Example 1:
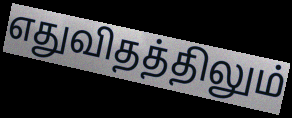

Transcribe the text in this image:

எதுவிதத்திலும்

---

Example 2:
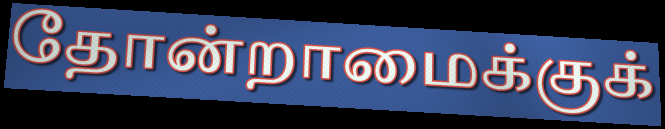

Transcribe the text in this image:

தோன்றாமைக்குக்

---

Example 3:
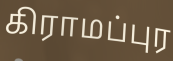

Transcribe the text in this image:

கிராமப்புர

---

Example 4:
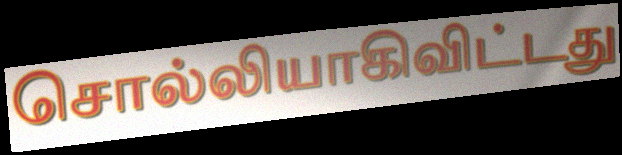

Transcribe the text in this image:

சொல்லியாகிவிட்டது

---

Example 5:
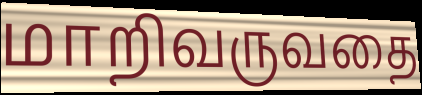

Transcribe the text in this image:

மாறிவருவதை